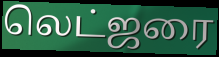
லெட்ஜரை